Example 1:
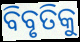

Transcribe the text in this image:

ବିବୃତିକୁ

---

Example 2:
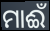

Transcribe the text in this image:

ମାଈଁ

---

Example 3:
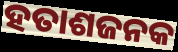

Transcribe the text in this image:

ହତାଶଜନକ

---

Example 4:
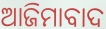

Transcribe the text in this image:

ଆଜିମାବାଦ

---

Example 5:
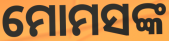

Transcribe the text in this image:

ମୋମସଙ୍କ